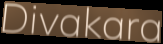
Divakara